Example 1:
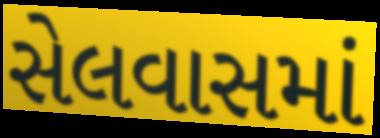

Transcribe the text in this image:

સેલવાસમાં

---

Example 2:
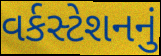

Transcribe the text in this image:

વર્કસ્ટેશનનું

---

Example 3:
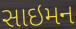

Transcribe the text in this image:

સાઇમન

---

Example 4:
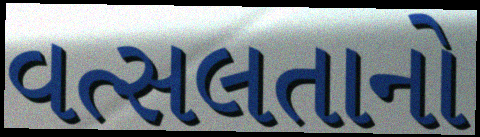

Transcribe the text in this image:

વત્સલતાનો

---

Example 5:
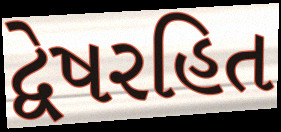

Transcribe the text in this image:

દ્વેષરહિત